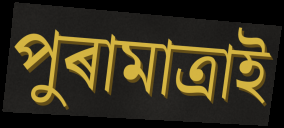
পুৰামাত্ৰাই